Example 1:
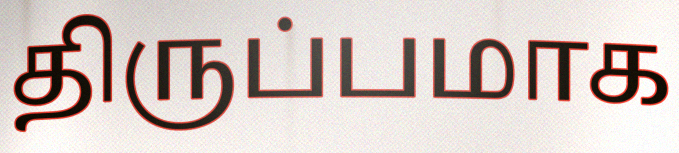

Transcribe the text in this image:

திருப்பமாக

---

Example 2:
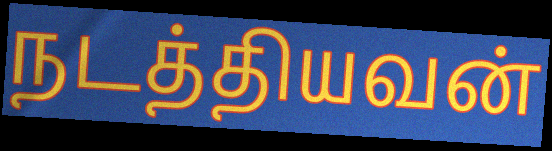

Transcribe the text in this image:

நடத்தியவன்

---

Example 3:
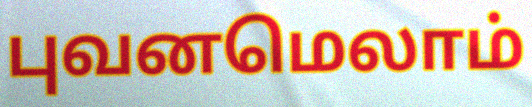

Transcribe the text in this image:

புவனமெலாம்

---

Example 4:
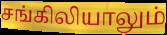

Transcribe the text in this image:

சங்கிலியாலும்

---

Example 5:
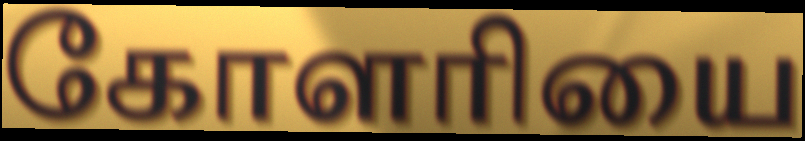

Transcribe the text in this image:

கோளரியை